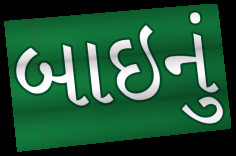
બાઇનું